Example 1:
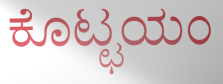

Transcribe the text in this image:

ಕೊಟ್ಟಯಂ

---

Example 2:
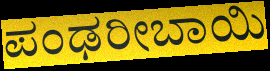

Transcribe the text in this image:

ಪಂಢರೀಬಾಯಿ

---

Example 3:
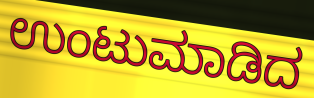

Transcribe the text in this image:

ಉಂಟುಮಾಡಿದ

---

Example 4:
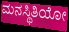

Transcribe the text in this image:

ಮನಸ್ಥಿತಿಯೋ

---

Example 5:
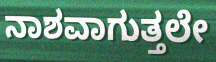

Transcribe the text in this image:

ನಾಶವಾಗುತ್ತಲೇ